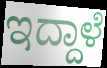
ಇದ್ದಾಳೆ